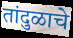
तांदुळाचे